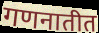
गणनातीत